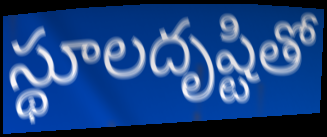
స్థూలదృష్టితో